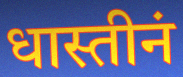
धास्तीनं